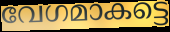
വേഗമാകട്ടെ